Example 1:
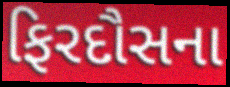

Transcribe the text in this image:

ફિરદૌસના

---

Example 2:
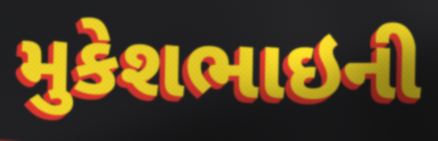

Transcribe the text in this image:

મુકેશભાઇની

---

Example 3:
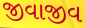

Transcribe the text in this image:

જીવાજીવ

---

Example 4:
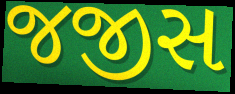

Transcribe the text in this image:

જજીસ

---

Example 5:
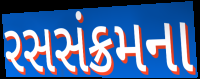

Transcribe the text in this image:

રસસંક્રમના